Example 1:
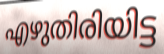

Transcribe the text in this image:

എഴുതിരിയിട്ട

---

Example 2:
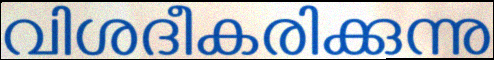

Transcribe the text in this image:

വിശദീകരിക്കുന്നു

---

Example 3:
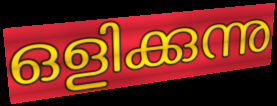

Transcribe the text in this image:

ഒളിക്കുന്നു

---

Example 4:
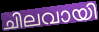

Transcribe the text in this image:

ചിലവായി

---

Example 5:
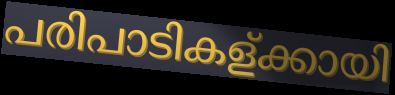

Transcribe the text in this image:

പരിപാടികള്ക്കായി